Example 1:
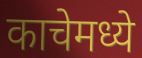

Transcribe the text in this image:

काचेमध्ये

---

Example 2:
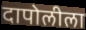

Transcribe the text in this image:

दापोलीला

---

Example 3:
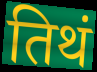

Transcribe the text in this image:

तिथं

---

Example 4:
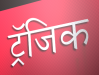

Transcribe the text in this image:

ट्रॅजिक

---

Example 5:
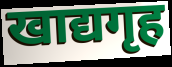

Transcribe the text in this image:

खाद्यगृह